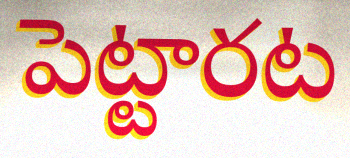
పెట్టారట